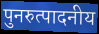
पुनरुत्पादनीय